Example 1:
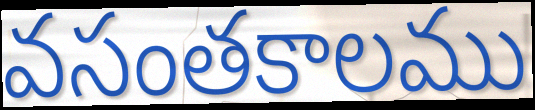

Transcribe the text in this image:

వసంతకాలము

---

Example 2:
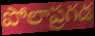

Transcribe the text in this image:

పోలాప్రగడ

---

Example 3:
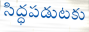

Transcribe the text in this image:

సిద్ధపడుటకు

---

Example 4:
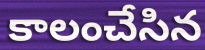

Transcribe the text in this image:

కాలంచేసిన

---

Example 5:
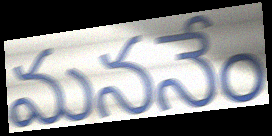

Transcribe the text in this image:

మననేం